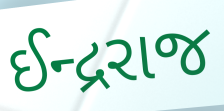
ઈન્દ્રરાજ